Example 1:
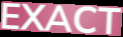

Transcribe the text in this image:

EXACT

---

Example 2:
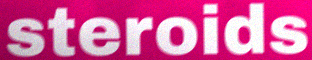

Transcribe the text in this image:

steroids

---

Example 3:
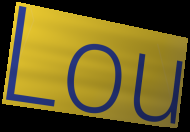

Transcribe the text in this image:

Lou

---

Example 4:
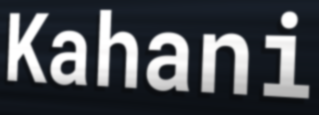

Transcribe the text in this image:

Kahani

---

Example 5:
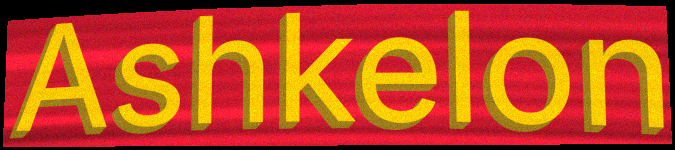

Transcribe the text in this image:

Ashkelon